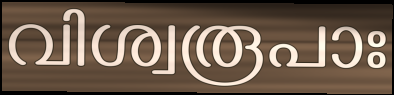
വിശ്വരൂപാഃ